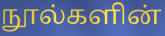
நூல்களின்